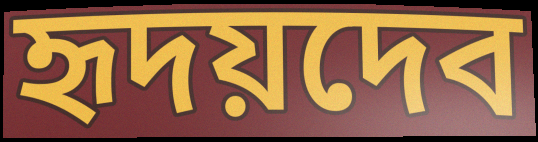
হৃদয়দেব